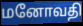
மனோவதி